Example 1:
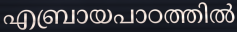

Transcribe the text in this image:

എബ്രായപാഠത്തിൽ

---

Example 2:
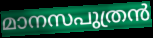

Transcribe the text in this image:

മാനസപുത്രൻ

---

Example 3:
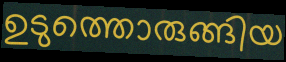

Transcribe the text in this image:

ഉടുത്തൊരുങ്ങിയ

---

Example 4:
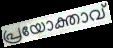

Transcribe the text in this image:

പ്രയോക്താവ്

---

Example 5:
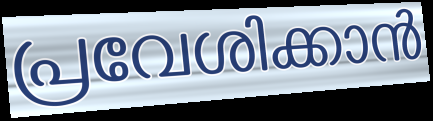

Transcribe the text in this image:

പ്രവേശിക്കാൻ